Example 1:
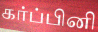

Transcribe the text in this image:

கர்ப்பினி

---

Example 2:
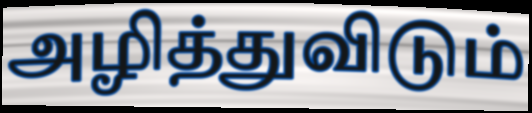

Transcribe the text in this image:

அழித்துவிடும்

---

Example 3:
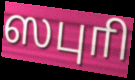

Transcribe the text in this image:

ஸபுரி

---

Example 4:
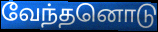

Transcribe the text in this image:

வேந்தனொடு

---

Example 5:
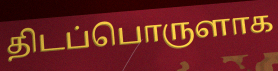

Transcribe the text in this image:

திடப்பொருளாக